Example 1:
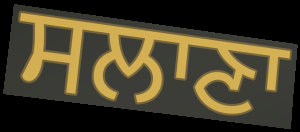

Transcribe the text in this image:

ਸਲਾਣਾ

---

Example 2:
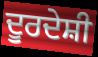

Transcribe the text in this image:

ਦੂਰਦੇਸ਼ੀ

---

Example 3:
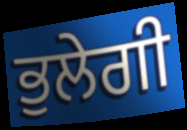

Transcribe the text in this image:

ਭੁਲੇਗੀ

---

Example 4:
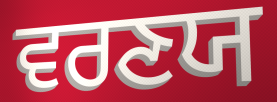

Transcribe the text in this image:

ਵਰਣਯ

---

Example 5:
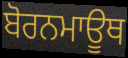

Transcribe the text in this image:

ਬੋਰਨਮਾਊਥ